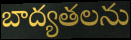
బాద్యతలను